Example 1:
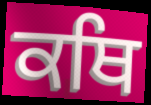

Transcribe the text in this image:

ਕਥਿ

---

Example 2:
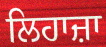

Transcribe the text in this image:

ਲਿਹਾਜ਼ਾ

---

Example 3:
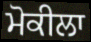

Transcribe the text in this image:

ਮੋਕੀਲਾ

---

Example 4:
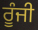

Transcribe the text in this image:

ਰੂੰਜੀ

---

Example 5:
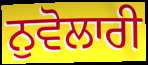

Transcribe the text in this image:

ਨੁਵੋਲਾਰੀ